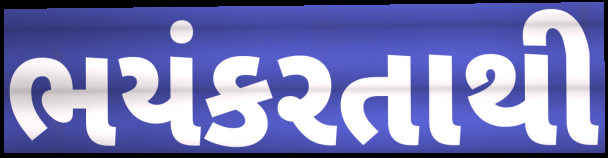
ભયંકરતાથી